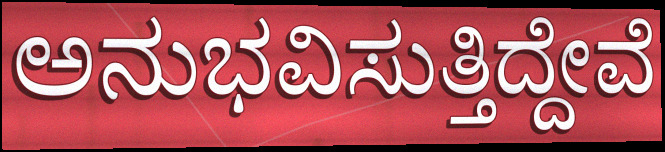
ಅನುಭವಿಸುತ್ತಿದ್ದೇವೆ